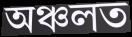
অঞ্চলত